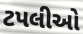
ટપલીઓ